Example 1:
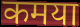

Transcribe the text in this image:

कमया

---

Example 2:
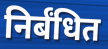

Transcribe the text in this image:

निर्बंधित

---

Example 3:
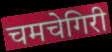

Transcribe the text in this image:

चमचेगिरी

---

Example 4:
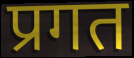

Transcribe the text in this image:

प्रगत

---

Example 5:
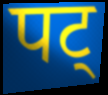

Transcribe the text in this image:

पट्